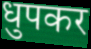
धुपकर